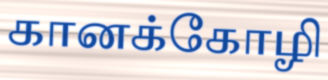
கானக்கோழி